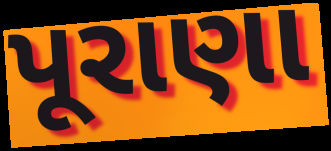
પૂરાણા